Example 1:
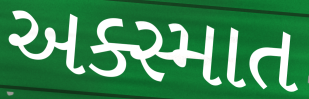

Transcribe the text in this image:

અક્સ્માત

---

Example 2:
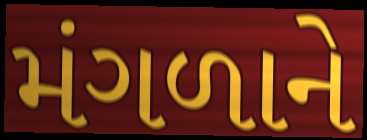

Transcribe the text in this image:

મંગળાને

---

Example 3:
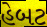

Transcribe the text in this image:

હેબટ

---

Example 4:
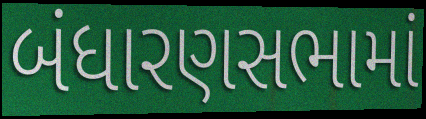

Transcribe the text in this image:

બંધારણસભામાં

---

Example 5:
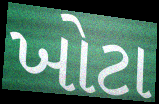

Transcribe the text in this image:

ખોટા